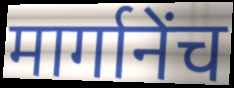
मार्गानेंच